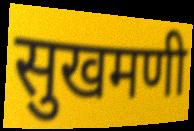
सुखमणी